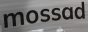
mossad